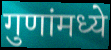
गुणांमध्ये